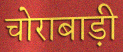
चोराबाड़ी